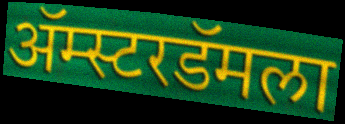
ॲम्स्टरडॅमला